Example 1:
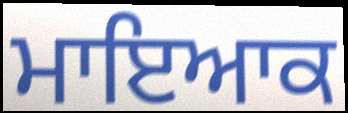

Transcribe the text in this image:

ਮਾਇਆਕ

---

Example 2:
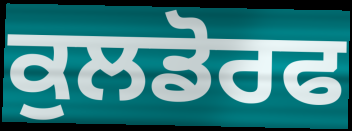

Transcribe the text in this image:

ਕੁਲਡੋਰਫ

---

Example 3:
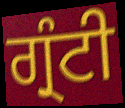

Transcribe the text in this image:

ਗ੍ਰੰਟੀ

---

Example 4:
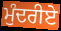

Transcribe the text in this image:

ਮੁੰਦਰੀਏ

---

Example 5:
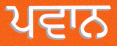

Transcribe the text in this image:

ਪਵਾਨ